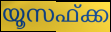
യൂസഫ്ക്ക